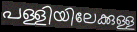
പള്ളിയിലേക്കുള്ള